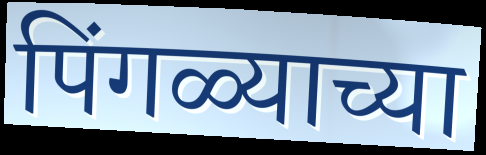
पिंगळ्याच्या